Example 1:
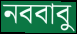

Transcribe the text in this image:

নববাবু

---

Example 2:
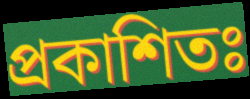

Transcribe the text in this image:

প্রকাশিতঃ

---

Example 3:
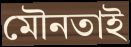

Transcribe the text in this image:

মৌনতাই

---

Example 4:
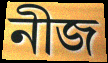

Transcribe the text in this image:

নীজ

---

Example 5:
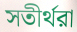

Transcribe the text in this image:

সতীর্থরা